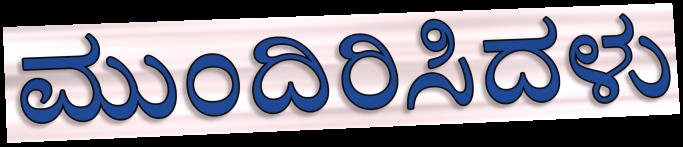
ಮುಂದಿರಿಸಿದಳು